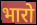
भारो